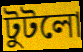
টুটলো